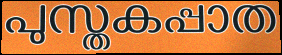
പുസ്തകപ്പാത